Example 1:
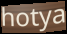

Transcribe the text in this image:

hotya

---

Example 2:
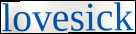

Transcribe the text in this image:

lovesick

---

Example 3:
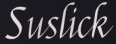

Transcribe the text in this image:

Suslick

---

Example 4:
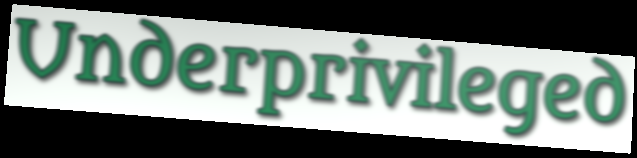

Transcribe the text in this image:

Underprivileged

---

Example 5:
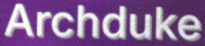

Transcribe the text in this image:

Archduke